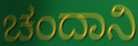
ಚಂದಾನಿ